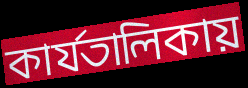
কার্যতালিকায়